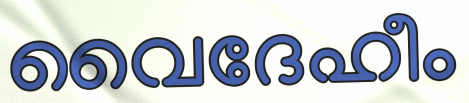
വൈദേഹീം